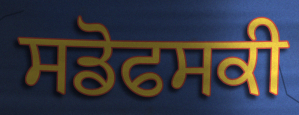
ਸਡੋਫਸਕੀ